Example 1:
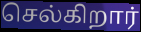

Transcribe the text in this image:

செல்கிறார்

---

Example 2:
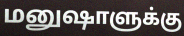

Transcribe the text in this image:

மனுஷாளுக்கு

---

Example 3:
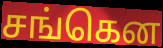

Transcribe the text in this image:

சங்கென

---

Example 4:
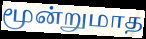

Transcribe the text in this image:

மூன்றுமாத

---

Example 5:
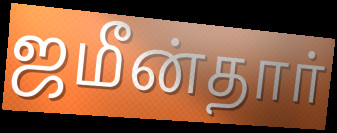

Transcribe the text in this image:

ஜமீன்தார்